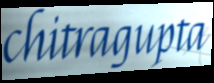
chitragupta